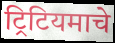
ट्रिटियमाचे